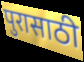
पुरासाठी